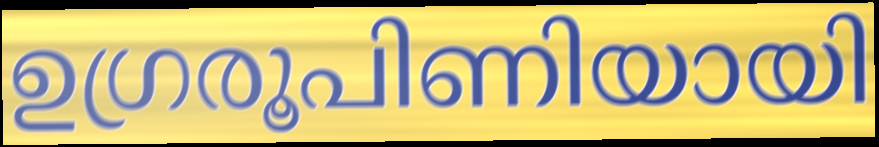
ഉഗ്രരൂപിണിയായി